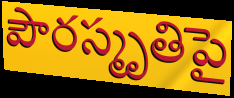
పౌరస్మృతిపై